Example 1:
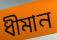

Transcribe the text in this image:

ধীমান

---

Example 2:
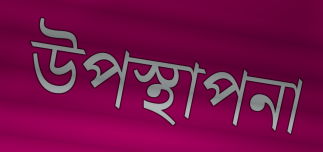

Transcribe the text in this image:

উপস্থাপনা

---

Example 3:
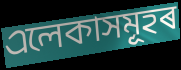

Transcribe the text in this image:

এলেকাসমূহৰ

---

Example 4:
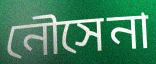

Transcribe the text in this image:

নৌসেনা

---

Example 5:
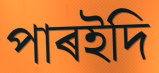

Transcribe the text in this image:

পাৰইদি